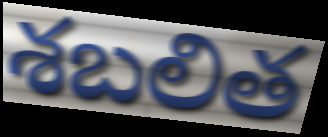
శబలిత